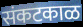
संकटकाळ